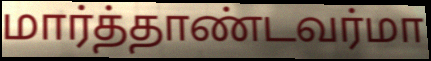
மார்த்தாண்டவர்மா